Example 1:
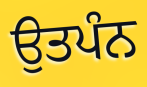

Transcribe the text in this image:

ਉਤਪੰਨ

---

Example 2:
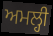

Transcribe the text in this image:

ਅਮਲ੍ਹੀ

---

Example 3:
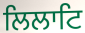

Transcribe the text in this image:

ਲਿਲਾਟਿ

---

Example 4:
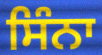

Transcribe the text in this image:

ਸਿੰਨਾ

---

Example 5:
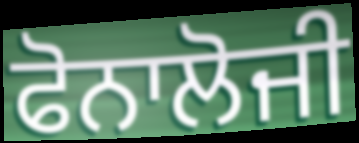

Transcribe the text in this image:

ਫੋਨਾਲੋਜੀ